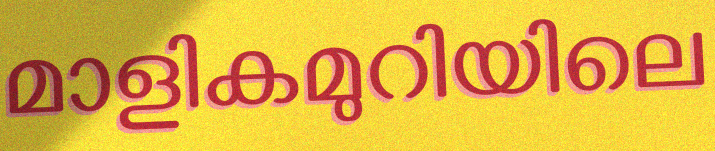
മാളികമുറിയിലെ